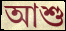
আশু